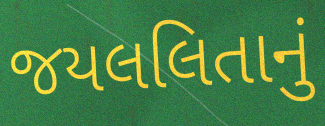
જયલલિતાનું